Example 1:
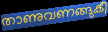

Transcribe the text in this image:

താണുവണങ്ങുകീ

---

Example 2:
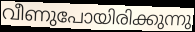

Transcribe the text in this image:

വീണുപോയിരിക്കുന്നു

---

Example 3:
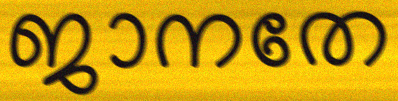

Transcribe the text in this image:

ജാനതേ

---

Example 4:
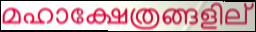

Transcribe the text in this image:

മഹാക്ഷേത്രങ്ങളില്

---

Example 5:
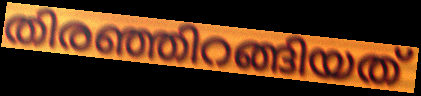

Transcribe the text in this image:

തിരഞ്ഞിറങ്ങിയത്